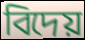
বিদেয়